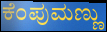
ಕೆಂಪುಮಣ್ಣು